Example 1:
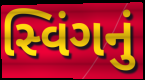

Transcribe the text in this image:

સ્વિંગનું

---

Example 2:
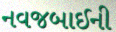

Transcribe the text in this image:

નવજબાઈની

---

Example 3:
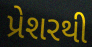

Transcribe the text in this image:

પ્રેશરથી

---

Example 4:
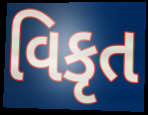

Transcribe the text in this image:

વિકૃત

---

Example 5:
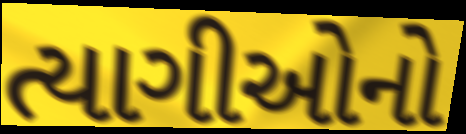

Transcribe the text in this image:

ત્યાગીઓનો